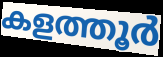
കളത്തൂർ